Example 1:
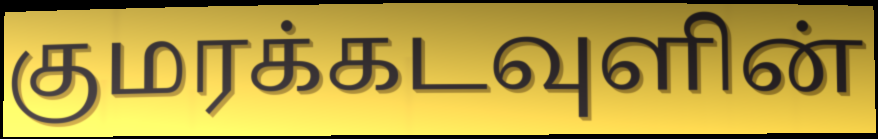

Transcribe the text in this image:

குமரக்கடவுளின்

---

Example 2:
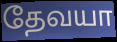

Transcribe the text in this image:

தேவயா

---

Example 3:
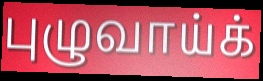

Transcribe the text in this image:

புழுவாய்க்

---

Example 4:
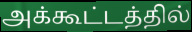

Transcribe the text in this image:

அக்கூட்டத்தில்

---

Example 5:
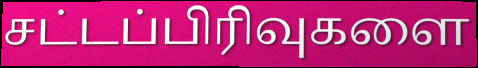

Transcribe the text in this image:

சட்டப்பிரிவுகளை